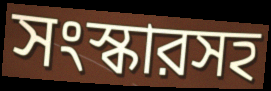
সংস্কারসহ